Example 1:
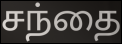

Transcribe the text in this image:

சந்தை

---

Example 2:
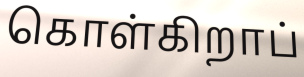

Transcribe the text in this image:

கொள்கிறாப்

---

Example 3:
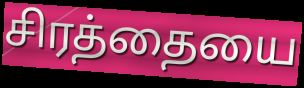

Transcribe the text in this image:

சிரத்தையை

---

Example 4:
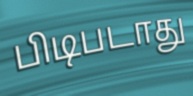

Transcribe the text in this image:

பிடிபடாது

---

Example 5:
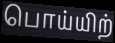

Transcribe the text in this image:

பொய்யிற்